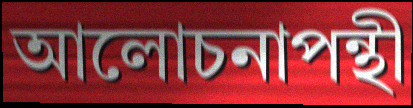
আলোচনাপন্থী